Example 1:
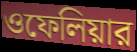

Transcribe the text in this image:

ওফেলিয়ার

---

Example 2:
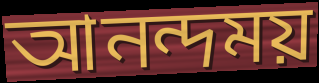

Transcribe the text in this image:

আনন্দময়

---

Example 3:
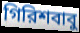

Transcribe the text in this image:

গিরিশবাবু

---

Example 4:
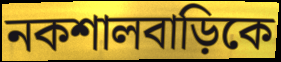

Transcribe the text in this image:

নকশালবাড়িকে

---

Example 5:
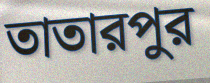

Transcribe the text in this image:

তাতারপুর